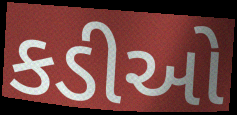
કડીઓ